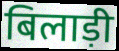
बिलाड़ी